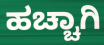
ಹಚ್ಚಾಗಿ